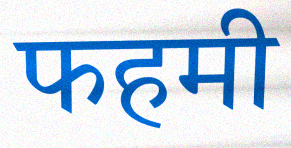
फहमी